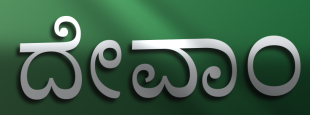
ದೇವಾಂ